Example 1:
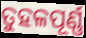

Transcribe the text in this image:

ତୁହଳପୂର୍ଣ୍ଣ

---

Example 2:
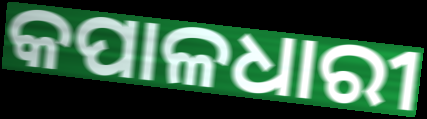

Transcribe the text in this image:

କପାଳଧାରୀ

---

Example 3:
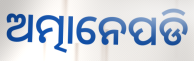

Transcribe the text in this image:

ଅତ୍ମାନେପଡି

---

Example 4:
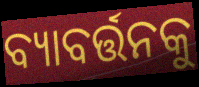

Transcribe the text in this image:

ବ୍ୟାବର୍ତ୍ତନକୁ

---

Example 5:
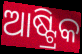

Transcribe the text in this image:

ଆଷ୍ଟ୍ରିକ